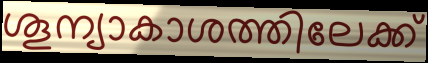
ശൂന്യാകാശത്തിലേക്ക്